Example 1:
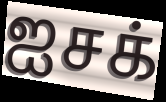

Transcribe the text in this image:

ஐசக்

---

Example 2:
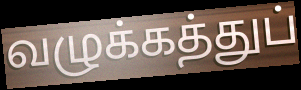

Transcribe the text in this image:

வழுக்கத்துப்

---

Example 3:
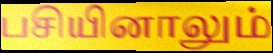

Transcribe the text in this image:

பசியினாலும்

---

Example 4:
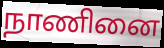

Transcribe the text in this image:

நாணினை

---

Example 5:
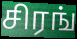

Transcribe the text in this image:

சிரங்